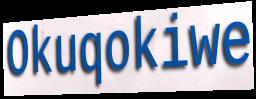
Okuqokiwe